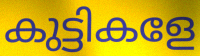
കുട്ടികളേ